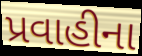
પ્રવાહીના